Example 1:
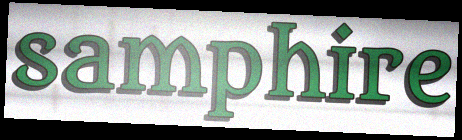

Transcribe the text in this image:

samphire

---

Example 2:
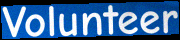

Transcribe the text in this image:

Volunteer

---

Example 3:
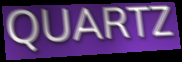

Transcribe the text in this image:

QUARTZ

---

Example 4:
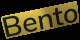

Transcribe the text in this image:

Bento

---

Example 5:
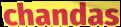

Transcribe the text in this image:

chandas